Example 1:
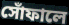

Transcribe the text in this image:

সোঁফালে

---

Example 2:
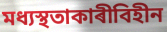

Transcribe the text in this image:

মধ্যস্থতাকাৰীবিহীন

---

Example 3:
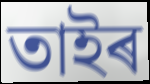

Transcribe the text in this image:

তাইৰ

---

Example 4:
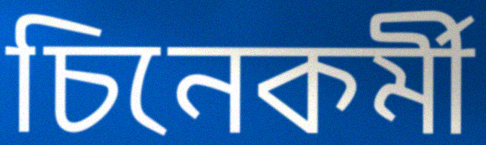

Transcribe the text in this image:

চিনেকৰ্মী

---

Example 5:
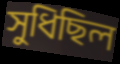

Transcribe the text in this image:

সুধিছিল